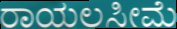
ರಾಯಲಸೀಮೆ